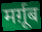
मर्ग़ूब